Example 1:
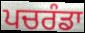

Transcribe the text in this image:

ਪਚਰੰਡਾ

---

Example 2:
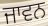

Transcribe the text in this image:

ਜਾਵਨ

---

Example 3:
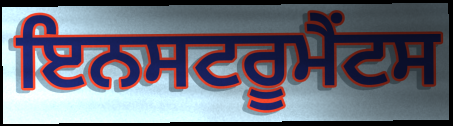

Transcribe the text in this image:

ਇਨਸਟਰੂਮੈਂਟਸ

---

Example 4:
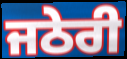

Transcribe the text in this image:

ਜਠੇਰੀ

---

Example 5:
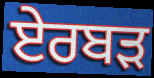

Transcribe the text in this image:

ਏਰਬੜ